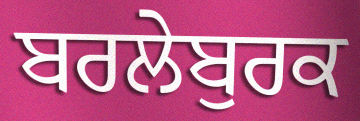
ਬਰਲੇਬੁਰਕ